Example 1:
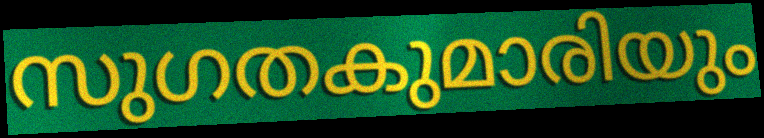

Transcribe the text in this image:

സുഗതകുമാരിയും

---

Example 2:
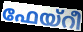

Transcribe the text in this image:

ഫേയ്റീ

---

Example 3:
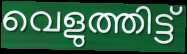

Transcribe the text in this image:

വെളുത്തിട്ട്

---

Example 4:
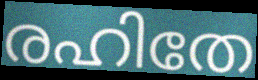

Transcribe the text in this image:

രഹിതേ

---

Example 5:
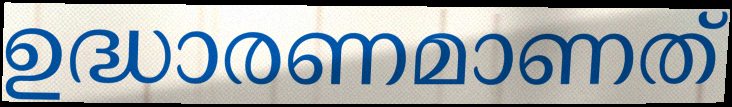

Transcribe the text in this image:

ഉദ്ധാരണമാണത്